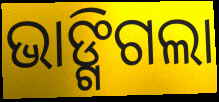
ଭାଙ୍ଗିଗଲା